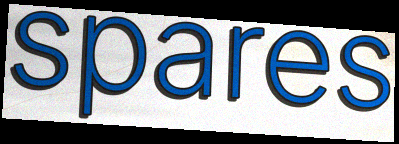
spares